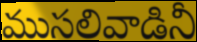
ముసలివాడినీ